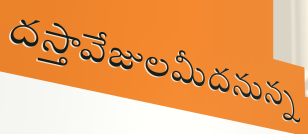
దస్తావేజులమీదనున్న